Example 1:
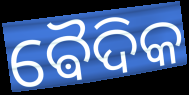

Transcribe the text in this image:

ଵୈଦିକ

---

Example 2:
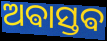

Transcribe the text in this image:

ଅଵାସ୍ତଵ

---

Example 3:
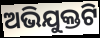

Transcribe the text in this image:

ଅଭିଯୁକ୍ତଟି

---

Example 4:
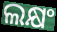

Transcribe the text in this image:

ଲକ୍ଷଂ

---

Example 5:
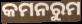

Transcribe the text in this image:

କମନରୁମ